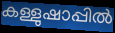
കള്ളുഷാപ്പിൽ